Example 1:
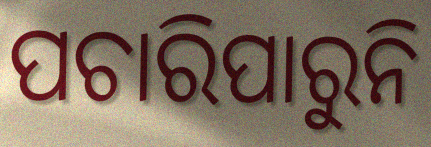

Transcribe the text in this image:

ପଚାରିପାରୁନି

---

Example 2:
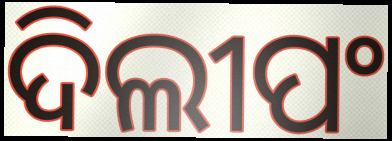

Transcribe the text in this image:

ଦିଲୀପଂ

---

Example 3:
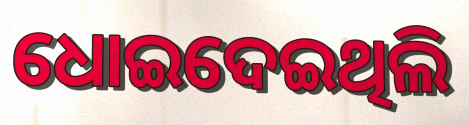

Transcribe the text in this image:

ଧୋଇଦେଇଥିଲି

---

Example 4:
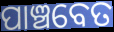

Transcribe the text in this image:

ପାଞ୍ଚବେତ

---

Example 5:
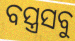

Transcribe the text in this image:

ବସ୍ତ୍ରସବୁ